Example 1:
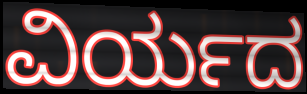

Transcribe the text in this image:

ವಿರ್ಯದ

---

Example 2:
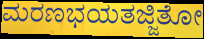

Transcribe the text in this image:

ಮರಣಭಯತಜ್ಜಿತೋ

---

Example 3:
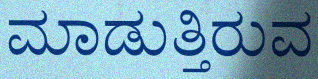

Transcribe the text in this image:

ಮಾಡುತ್ತಿರುವ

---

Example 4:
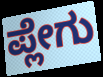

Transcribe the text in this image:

ಪ್ಲೇಗು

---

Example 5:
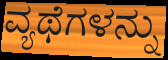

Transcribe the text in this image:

ವ್ಯಥೆಗಳನ್ನು